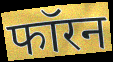
फॉरन